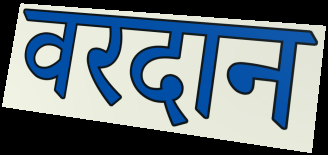
वरदान